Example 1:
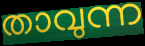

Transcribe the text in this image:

താവുന്ന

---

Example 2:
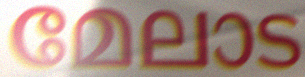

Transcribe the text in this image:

മേലാട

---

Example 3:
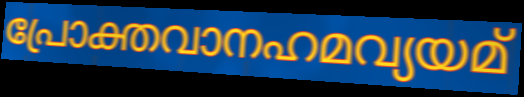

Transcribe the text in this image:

പ്രോക്തവാനഹമവ്യയമ്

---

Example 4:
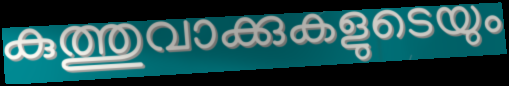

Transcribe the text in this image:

കുത്തുവാക്കുകളുടെയും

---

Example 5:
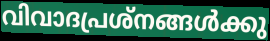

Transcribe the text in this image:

വിവാദപ്രശ്നങ്ങൾക്കു